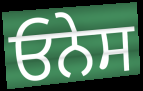
ਓਨੇਸ